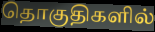
தொகுதிகளில்